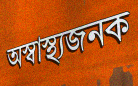
অস্বাস্থ্যজনক